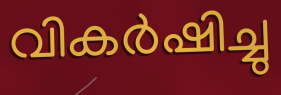
വികർഷിച്ചു